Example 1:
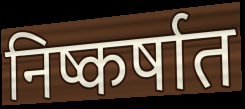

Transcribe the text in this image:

निष्कर्षात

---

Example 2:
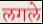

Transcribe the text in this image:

लगले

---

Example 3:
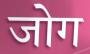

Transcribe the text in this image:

जोग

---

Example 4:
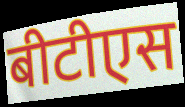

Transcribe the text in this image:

बीटीएस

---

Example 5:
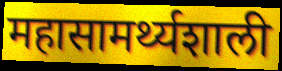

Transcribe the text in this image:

महासामर्थ्यशाली